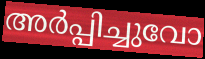
അർപ്പിച്ചുവോ